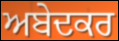
ਅਬੇਦਕਰ